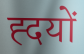
ह्दयों